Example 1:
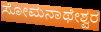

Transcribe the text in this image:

ಸೋಮನಾಥೇಶ್ವರ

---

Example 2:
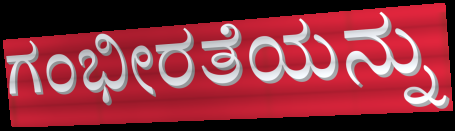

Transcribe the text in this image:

ಗಂಭೀರತೆಯನ್ನು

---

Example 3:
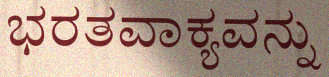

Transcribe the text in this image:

ಭರತವಾಕ್ಯವನ್ನು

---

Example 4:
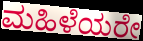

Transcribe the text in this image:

ಮಹಿಳೆಯರೇ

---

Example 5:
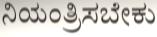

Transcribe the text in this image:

ನಿಯಂತ್ರಿಸಬೇಕು